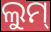
ଲୁମ୍